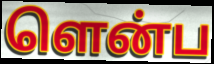
ளென்ப